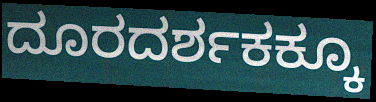
ದೂರದರ್ಶಕಕ್ಕೂ